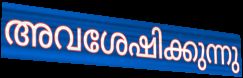
അവശേഷിക്കുന്നു